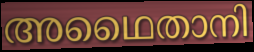
അഥൈതാനി